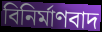
বিনিৰ্মাণবাদ